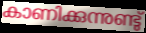
കാണിക്കുന്നുണ്ടു്